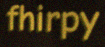
fhirpy